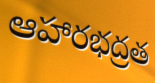
ఆహారభద్రత